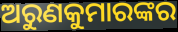
ଅରୁଣକୁମାରଙ୍କର